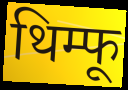
थिम्फू